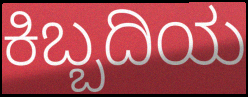
ಕಿಬ್ಬದಿಯ